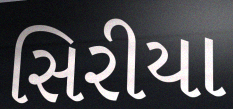
સિરીયા